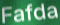
Fafda